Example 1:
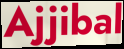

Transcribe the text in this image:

Ajjibal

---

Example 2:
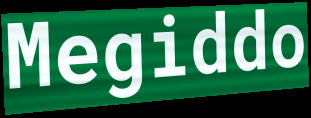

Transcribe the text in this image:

Megiddo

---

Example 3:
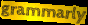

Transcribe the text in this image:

grammarly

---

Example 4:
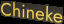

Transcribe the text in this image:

Chineke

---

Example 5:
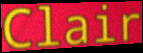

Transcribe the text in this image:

Clair